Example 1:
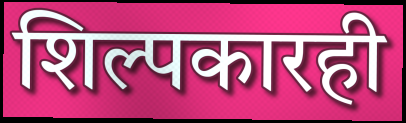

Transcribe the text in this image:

शिल्पकारही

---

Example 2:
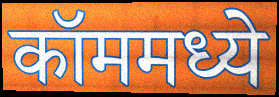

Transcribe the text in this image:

कॉममध्ये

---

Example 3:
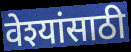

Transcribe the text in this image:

वेश्यांसाठी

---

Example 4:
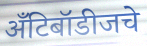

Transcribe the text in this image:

अँटिबॉडीजचे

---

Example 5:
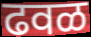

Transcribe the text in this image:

ढवळ